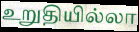
உறுதியில்லா